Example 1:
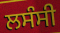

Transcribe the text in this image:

ਲਸੰਸੀ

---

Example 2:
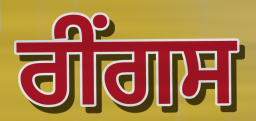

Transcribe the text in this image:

ਰੀਂਗਸ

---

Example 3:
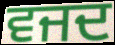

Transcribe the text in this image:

ਵਜਦ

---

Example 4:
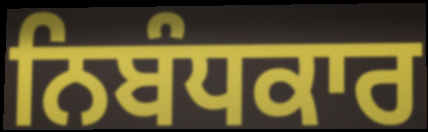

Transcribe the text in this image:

ਨਿਬੰਧਕਾਰ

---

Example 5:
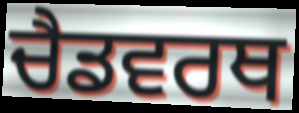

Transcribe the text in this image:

ਚੈਡਵਰਥ